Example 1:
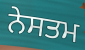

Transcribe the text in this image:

ਨੇਸਤਮ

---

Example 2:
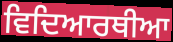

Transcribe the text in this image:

ਵਿਦਿਆਰਥੀਆ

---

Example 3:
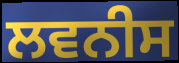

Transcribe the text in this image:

ਲਵਨੀਸ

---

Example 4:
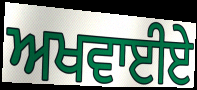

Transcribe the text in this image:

ਅਖਵਾਈਏ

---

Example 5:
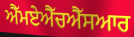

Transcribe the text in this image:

ਐੱਮਏਐੱਚਐੱਸਆਰ